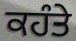
ਕਹੰਤੇ